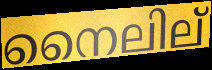
നൈലില്